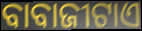
ବାବାଜୀଟାଏ